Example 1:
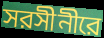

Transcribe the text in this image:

সরসীনীরে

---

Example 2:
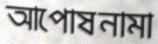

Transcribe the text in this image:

আপোষনামা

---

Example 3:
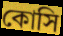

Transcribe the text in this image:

কোসি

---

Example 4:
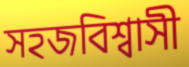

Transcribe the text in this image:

সহজবিশ্বাসী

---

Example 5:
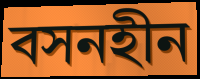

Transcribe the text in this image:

বসনহীন